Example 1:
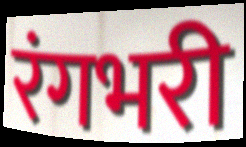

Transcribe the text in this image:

रंगभरी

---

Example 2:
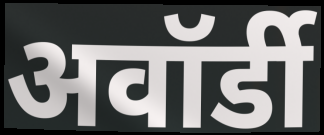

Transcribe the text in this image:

अवॉर्डी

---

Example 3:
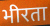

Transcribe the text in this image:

भीरता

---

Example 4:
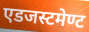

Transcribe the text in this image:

एडजस्टमेण्ट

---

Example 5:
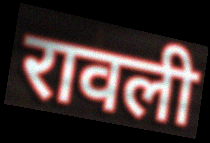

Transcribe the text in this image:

रावली